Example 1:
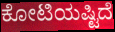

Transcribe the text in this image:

ಕೋಟಿಯಷ್ಟಿದೆ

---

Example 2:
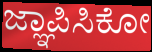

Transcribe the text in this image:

ಜ್ಞಾಪಿಸಿಕೋ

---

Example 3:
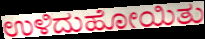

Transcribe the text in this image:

ಉಳಿದುಹೋಯಿತು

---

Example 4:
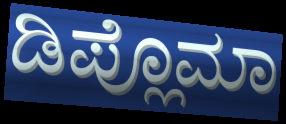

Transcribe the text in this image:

ಡಿಪ್ಲೊಮಾ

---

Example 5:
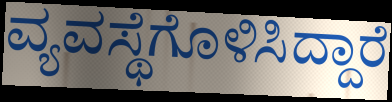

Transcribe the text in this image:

ವ್ಯವಸ್ಥೆಗೊಳಿಸಿದ್ದಾರೆ